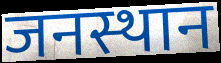
जनस्थान